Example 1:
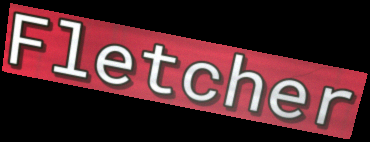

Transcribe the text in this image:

Fletcher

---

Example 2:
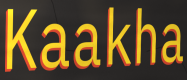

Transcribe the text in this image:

Kaakha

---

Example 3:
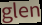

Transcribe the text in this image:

glen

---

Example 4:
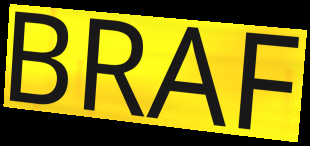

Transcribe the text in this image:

BRAF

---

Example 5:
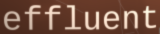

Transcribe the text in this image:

effluent